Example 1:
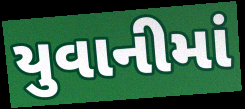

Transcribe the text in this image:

યુવાનીમાં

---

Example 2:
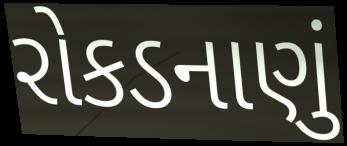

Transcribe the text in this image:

રોકડનાણું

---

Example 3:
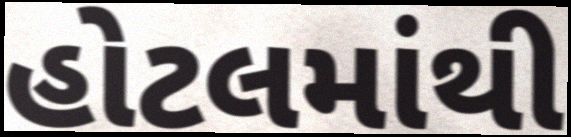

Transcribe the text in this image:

હોટલમાંથી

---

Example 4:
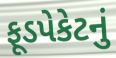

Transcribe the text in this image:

ફૂડપેકેટનું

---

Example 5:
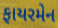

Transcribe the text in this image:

ફાયરમેન